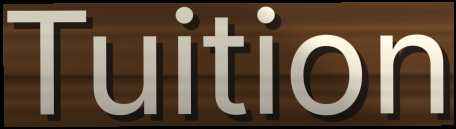
Tuition